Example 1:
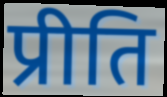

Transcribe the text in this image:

प्रीति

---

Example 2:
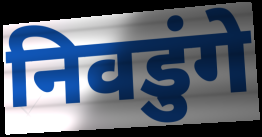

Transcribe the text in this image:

निवडुंगे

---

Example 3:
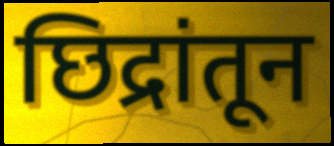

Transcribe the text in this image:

छिद्रांतून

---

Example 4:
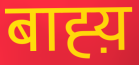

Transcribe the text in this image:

बाह्य़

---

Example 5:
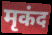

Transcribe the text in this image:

मृकंद